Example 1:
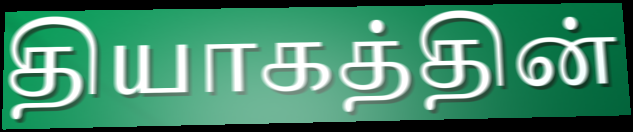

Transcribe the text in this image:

தியாகத்தின்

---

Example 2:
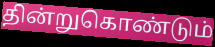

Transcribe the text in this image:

தின்றுகொண்டும்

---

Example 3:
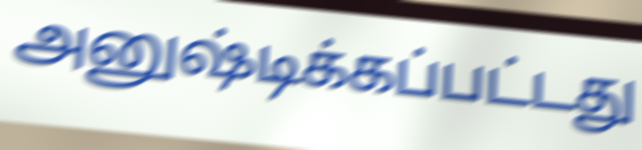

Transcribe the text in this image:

அனுஷ்டிக்கப்பட்டது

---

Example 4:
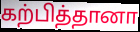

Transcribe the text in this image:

கற்பித்தானா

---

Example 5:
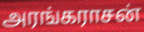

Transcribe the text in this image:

அரங்கராசன்